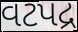
વટપદ્ર